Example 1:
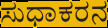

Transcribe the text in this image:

ಸುಧಾಕರನ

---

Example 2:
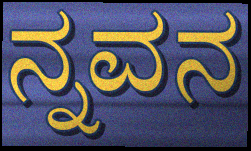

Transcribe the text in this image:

ನ್ನವನ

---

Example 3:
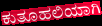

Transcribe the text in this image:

ಕುತೂಹಲಿಯಾಗಿ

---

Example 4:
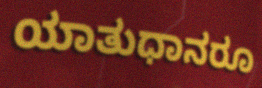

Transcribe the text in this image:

ಯಾತುಧಾನರೂ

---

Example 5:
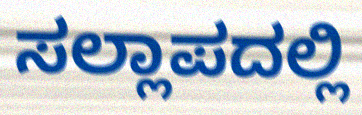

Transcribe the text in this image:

ಸಲ್ಲಾಪದಲ್ಲಿ